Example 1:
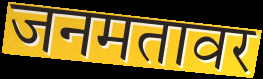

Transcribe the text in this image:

जनमतावर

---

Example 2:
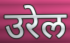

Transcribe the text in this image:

उरेल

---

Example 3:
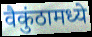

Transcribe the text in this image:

वैकुंठामध्ये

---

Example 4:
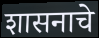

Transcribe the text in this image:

शासनाचे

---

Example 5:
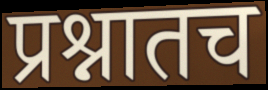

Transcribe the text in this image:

प्रश्नातच